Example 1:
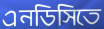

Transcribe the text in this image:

এনডিসিতে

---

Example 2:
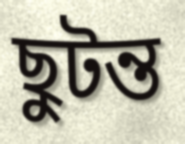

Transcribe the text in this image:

ছুটন্ত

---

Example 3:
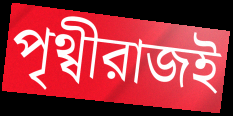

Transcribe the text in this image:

পৃথ্বীরাজই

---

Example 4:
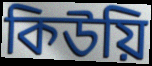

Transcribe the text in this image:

কিউয়ি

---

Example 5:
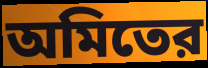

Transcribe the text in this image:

অমিতের